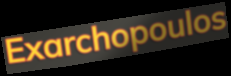
Exarchopoulos